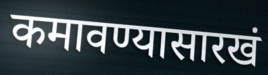
कमावण्यासारखं